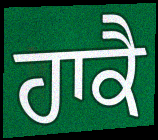
ਹਾਕੈ